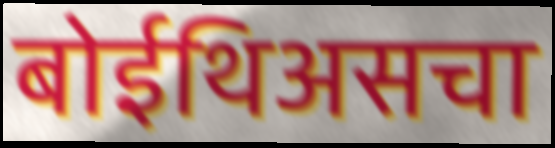
बोईथिअसचा